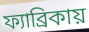
ফ্যাব্রিকায়